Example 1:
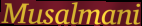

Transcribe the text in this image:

Musalmani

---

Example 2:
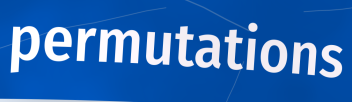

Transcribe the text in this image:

permutations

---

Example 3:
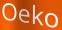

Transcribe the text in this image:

Oeko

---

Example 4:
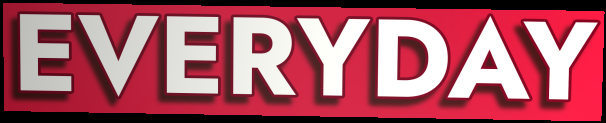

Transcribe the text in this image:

EVERYDAY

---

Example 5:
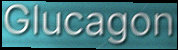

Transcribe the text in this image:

Glucagon